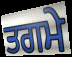
ਤਗਮੇ